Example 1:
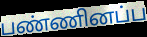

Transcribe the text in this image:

பண்ணினப்ப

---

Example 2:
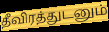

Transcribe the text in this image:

தீவிரத்துடனும்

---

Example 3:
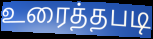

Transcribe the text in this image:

உரைத்தபடி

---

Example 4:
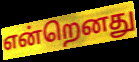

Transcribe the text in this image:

என்றெனது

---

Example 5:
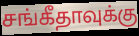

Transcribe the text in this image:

சங்கீதாவுக்கு